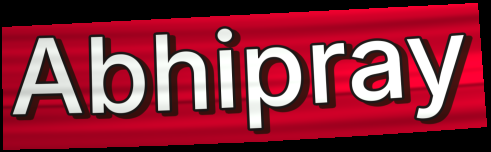
Abhipray